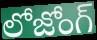
లోజోంగ్